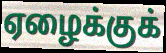
ஏழைக்குக்